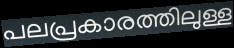
പലപ്രകാരത്തിലുള്ള